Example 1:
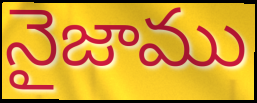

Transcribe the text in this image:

నైజాము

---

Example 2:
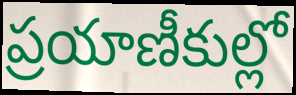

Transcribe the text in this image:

ప్రయాణీకుల్లో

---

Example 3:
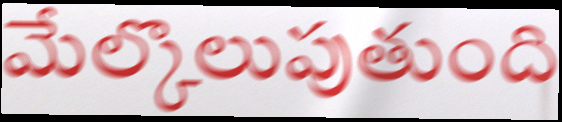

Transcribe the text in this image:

మేల్కొలుపుతుంది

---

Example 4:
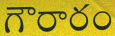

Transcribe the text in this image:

గౌరారం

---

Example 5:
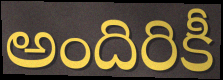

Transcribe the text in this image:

అందిరికీ